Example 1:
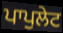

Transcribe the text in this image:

ਪਾਪੁਲੇਟ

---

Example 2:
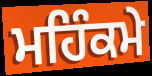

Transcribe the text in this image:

ਮਹਿੰਕਮੇ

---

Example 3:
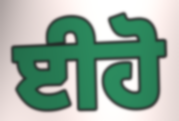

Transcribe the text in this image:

ਈਹੋ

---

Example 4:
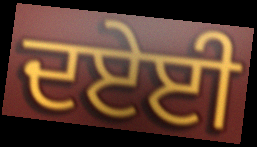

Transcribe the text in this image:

ਦਏਈ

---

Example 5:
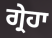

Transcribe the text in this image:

ਗ੍ਰੇਹਾ